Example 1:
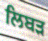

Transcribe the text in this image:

ਲਿਬੜ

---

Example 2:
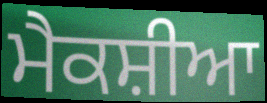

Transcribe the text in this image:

ਮੈਕਸ਼ੀਆ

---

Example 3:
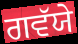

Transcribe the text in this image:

ਗਵੱਯੇ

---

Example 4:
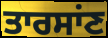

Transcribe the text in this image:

ਤਾਰਸਾਂਣ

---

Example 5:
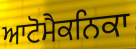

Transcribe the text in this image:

ਆਟੋਮੈਕਨਿਕਾ